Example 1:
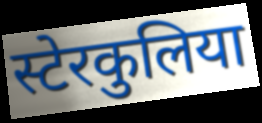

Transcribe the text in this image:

स्टेरकुलिया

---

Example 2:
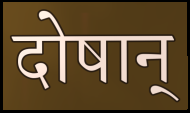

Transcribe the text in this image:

दोषान्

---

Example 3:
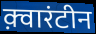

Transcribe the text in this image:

क़्वारंटीन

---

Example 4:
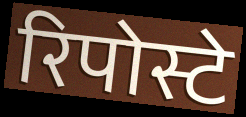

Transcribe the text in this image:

रिपोस्टे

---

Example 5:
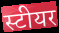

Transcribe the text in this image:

स्टीयर